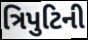
ત્રિપુટિની